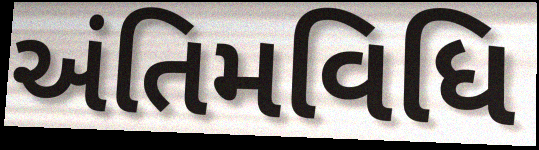
અંતિમવિધિ